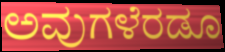
ಅವುಗಳೆರಡೂ